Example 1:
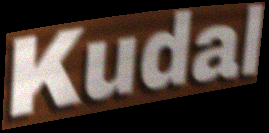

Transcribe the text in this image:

Kudal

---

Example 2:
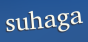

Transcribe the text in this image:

suhaga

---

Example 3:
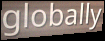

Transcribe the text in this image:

globally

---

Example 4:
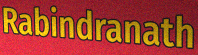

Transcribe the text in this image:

Rabindranath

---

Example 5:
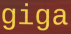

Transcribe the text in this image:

giga